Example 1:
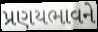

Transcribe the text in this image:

પ્રણયભાવને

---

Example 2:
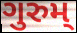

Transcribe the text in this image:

ગુરુમ્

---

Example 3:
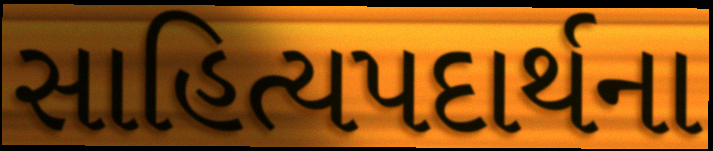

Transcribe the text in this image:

સાહિત્યપદાર્થના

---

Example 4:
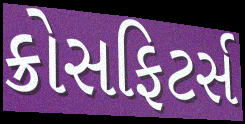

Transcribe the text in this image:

ક્રોસફિટર્સ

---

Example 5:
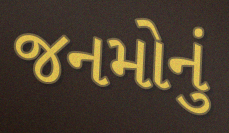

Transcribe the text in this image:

જનમોનું